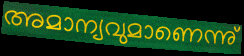
അമാന്യവുമാണെന്നു്